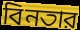
বিনতার